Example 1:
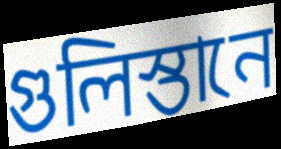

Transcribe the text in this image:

গুলিস্তানে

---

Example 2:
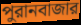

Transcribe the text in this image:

পুরানবাজার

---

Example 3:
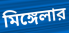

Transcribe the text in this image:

মিঙ্গেলার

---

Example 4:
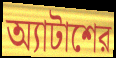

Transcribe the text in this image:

অ্যাটাশের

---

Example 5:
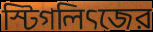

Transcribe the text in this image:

স্টিগলিৎজের